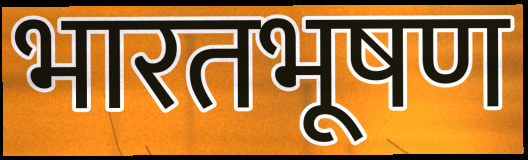
भारतभूषण